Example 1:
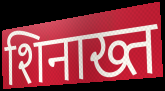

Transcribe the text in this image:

शिनाख्त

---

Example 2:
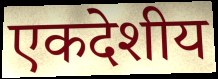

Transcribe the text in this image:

एकदेशीय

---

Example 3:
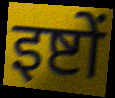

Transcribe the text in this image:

इष्टों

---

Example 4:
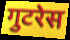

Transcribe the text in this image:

गुटरेस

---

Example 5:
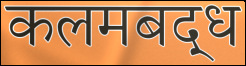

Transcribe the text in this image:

कलमबद्ध